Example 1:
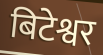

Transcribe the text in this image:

बिटेश्वर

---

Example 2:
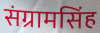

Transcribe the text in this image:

संग्रामसिंह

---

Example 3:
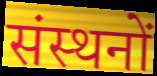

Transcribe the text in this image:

संस्थनों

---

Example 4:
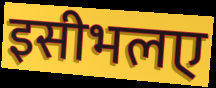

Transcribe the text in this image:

इसीभलए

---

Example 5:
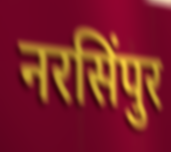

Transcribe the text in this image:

नरसिंपुर